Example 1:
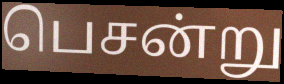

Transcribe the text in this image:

பெசன்று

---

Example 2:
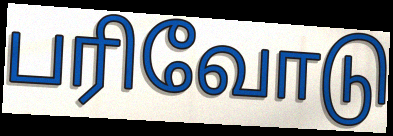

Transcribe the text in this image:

பரிவோடு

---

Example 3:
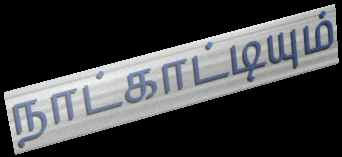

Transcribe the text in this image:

நாட்காட்டியும்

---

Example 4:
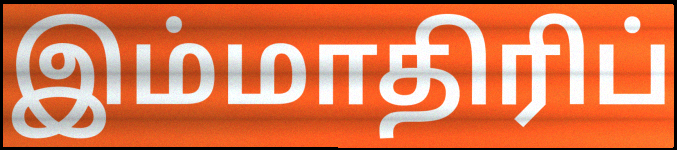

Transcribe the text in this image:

இம்மாதிரிப்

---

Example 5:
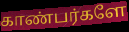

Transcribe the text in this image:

காண்பர்களே